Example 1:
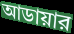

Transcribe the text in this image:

আডায়ার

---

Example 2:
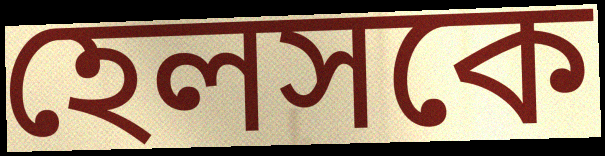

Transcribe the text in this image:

হেলসকে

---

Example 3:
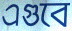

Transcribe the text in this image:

এগুবে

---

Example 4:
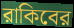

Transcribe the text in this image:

রাকিবের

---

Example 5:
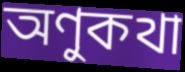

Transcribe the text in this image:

অণুকথা